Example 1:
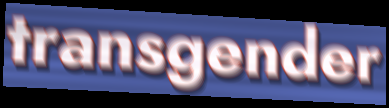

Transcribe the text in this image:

transgender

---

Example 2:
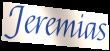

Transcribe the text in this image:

Jeremias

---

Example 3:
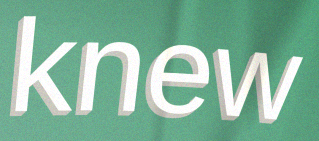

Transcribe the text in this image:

knew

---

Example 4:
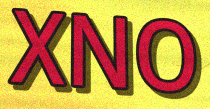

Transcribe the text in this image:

XNO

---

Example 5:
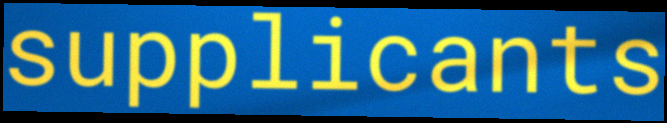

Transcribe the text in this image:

supplicants